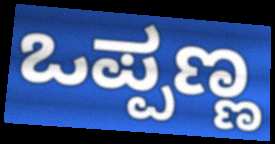
ಒಪ್ಪಣ್ಣ